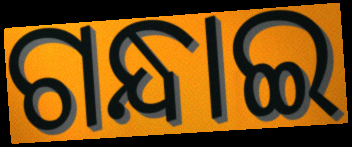
ଗନ୍ଧାଇ